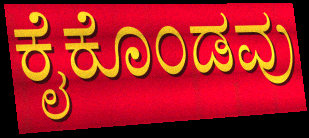
ಕೈಕೊಂಡವು